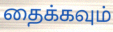
தைக்கவும்